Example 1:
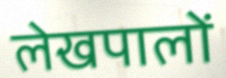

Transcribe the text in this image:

लेखपालों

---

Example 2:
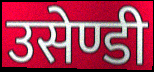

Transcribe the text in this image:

उसेण्डी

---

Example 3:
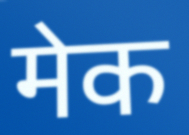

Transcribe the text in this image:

मेक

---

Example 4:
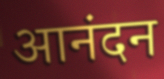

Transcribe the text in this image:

आनंदन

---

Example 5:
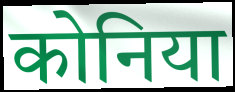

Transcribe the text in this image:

कोनिया